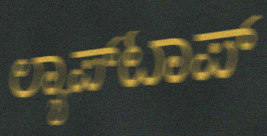
ಲ್ಯಾಪ್‍ಟಾಪ್